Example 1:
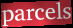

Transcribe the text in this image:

parcels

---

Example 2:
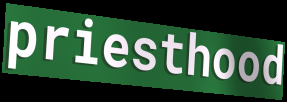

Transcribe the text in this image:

priesthood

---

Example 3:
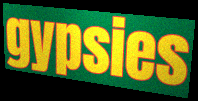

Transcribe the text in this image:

gypsies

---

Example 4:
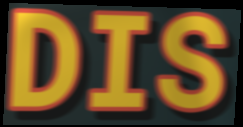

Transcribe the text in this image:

DIS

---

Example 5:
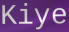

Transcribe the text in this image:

Kiye